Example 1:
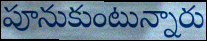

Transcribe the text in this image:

పూనుకుంటున్నారు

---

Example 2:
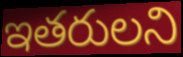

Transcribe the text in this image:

ఇతరులని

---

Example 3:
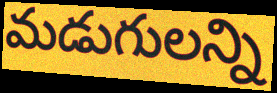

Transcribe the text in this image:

మడుగులన్ని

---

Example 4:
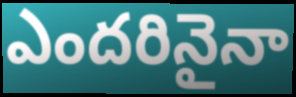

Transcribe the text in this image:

ఎందరినైనా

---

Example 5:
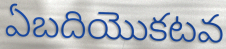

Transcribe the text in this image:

ఏబదియొకటవ